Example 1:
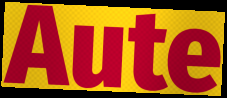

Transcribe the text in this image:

Aute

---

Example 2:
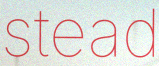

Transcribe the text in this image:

stead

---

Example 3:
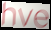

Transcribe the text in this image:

hve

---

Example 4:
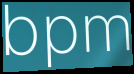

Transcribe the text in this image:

bpm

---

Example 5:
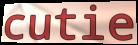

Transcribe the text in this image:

cutie